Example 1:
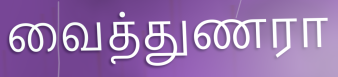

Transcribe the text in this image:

வைத்துணரா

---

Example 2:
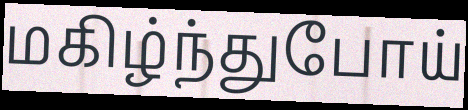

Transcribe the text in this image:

மகிழ்ந்துபோய்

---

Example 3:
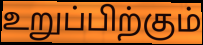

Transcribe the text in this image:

உறுப்பிற்கும்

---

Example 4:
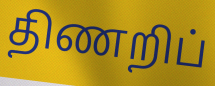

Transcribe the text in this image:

திணறிப்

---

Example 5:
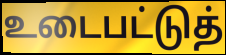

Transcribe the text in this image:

உடைபட்டுத்